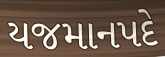
યજમાનપદે